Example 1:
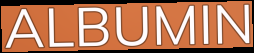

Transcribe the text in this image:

ALBUMIN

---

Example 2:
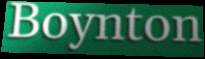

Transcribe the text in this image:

Boynton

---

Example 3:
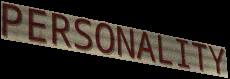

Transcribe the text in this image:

PERSONALITY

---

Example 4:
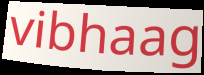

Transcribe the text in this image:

vibhaag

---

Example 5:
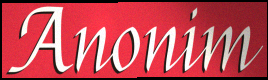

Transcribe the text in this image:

Anonim